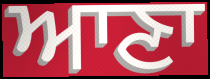
ਆਣਾ